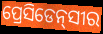
ପ୍ରେସିଡେନ୍‌ସୀର